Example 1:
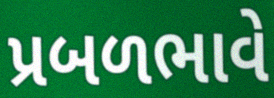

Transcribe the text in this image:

પ્રબળભાવે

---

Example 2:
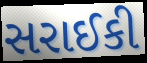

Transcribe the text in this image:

સરાઈકી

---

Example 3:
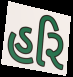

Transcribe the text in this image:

હરિ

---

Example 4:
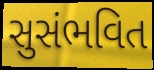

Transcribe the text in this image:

સુસંભવિત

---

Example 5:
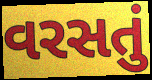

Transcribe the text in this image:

વરસતું